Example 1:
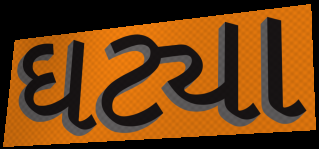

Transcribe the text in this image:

ઘટ્યા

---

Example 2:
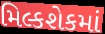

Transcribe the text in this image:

મિલ્કશેકમાં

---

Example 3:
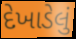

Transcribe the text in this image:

દેખાડેલું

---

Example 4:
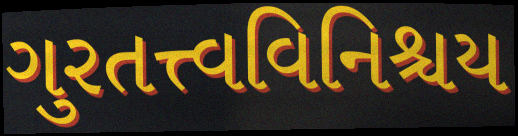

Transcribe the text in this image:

ગુરતત્ત્વવિનિશ્ચય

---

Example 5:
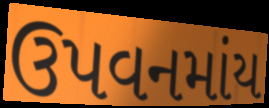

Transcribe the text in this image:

ઉપવનમાંય